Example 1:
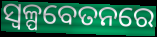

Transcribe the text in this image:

ସ୍ୱଳ୍ପବେତନରେ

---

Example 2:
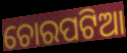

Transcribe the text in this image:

ଚୋରପଟିଆ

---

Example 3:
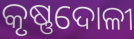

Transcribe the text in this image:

କୃଷ୍ଣଦୋଳୀ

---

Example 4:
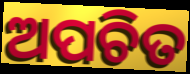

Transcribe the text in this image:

ଅପଚିତ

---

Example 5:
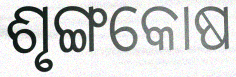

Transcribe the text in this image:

ଶୃଙ୍ଗକୋଷ